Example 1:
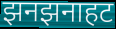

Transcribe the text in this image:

झनझनाहट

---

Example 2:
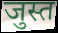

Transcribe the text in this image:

जुस्त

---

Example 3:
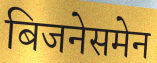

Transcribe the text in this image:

बिजनेसमेन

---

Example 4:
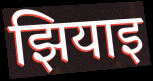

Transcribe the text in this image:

झियाइ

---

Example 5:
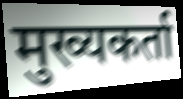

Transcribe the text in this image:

मुख्यकर्ता